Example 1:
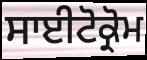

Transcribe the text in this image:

ਸਾਈਟੋਕ੍ਰੋਮ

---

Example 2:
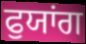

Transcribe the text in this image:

ਫੁਯਾਂਗ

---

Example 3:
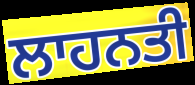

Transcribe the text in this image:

ਲਾਹਨਤੀ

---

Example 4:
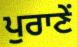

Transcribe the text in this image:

ਪੁਰਾਣੇਂ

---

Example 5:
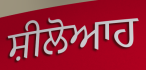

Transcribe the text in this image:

ਸ਼ੀਲੋਆਹ